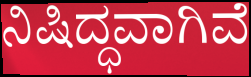
ನಿಷಿದ್ಧವಾಗಿವೆ